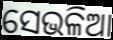
ସେଭଳିଆ